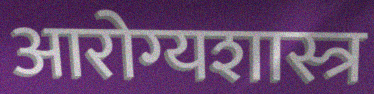
आरोग्यशास्त्र